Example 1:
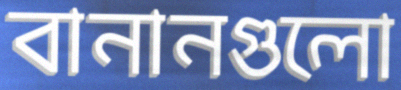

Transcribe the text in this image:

বানানগুলো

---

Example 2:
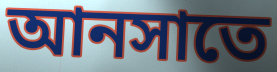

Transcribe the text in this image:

আনসাতে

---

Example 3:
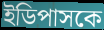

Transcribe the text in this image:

ইডিপাসকে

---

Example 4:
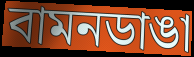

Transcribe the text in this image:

বামনডাঙা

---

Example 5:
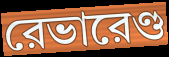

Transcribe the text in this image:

রেভারেণ্ড